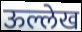
ऊल्लेख